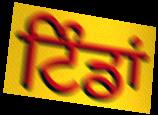
ਟਿੰਡਾਂ